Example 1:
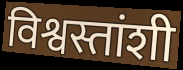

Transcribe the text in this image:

विश्वस्तांशी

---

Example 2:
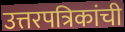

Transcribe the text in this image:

उत्तरपत्रिकांची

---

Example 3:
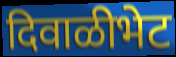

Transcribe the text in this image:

दिवाळीभेट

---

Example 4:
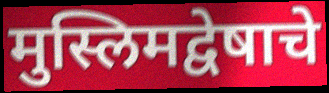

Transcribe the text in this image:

मुस्लिमद्वेषाचे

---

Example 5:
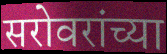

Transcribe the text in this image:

सरोवरांच्या